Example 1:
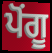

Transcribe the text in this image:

ਪੋਂਗੂ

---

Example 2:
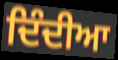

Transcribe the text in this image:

ਦਿੰਦੀਆ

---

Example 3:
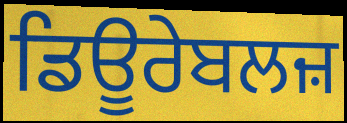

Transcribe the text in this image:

ਡਿਊਰੇਬਲਜ਼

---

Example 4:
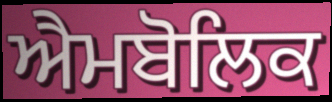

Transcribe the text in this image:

ਐਮਬੋਲਿਕ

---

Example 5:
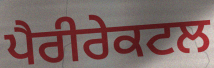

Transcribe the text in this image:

ਪੈਰੀਰੇਕਟਲ